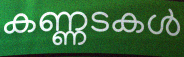
കണ്ണടകൾ